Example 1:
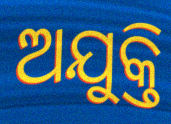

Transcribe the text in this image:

ଅଯୁକ୍ତି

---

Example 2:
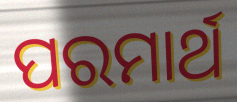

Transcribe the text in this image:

ପରମାର୍ଥ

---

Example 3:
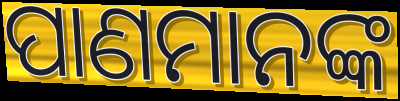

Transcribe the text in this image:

ପାଣମାନଙ୍କ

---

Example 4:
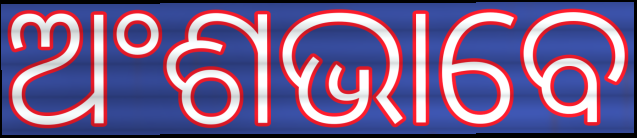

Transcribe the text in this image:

ଅଂଶଭାବେ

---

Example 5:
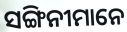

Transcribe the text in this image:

ସଙ୍ଗିନୀମାନେ